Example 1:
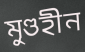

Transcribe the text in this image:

মুণ্ডহীন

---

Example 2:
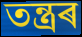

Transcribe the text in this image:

তন্ত্ৰৰ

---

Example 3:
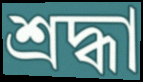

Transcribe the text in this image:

শ্ৰদ্ধা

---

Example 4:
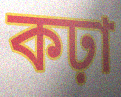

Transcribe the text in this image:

কঢ়া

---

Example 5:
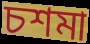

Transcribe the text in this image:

চশমা